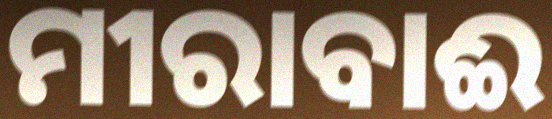
ମୀରାବାଈ